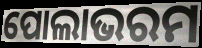
ପୋଲାଭରମ